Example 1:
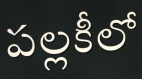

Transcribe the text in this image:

పల్లకీలో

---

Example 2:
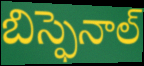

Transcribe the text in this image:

బిస్ఫెనాల్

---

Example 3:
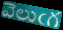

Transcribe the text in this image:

వెలుఁగ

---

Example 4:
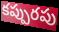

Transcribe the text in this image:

కప్పురపు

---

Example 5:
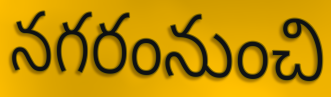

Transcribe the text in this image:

నగరంనుంచి